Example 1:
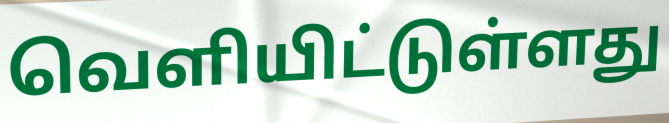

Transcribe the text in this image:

வெளியிட்டுள்ளது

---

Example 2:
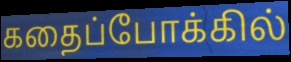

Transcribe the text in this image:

கதைப்போக்கில்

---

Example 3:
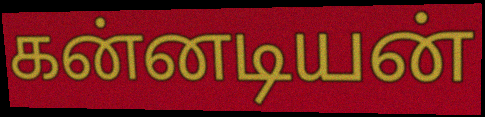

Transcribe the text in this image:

கன்னடியன்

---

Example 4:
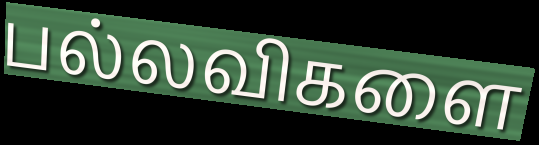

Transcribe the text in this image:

பல்லவிகளை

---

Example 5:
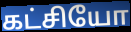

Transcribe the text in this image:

கட்சியோ